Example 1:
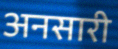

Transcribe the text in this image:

अनसारी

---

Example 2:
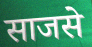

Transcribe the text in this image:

साजसे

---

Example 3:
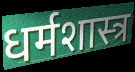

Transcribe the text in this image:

धर्मशास्त्र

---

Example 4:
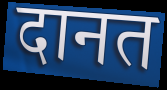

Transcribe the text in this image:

दानत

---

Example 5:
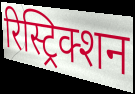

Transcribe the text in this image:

रिस्ट्रिक्शन